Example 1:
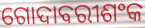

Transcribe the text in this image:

ଗୋଦାବରୀଶଂକ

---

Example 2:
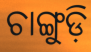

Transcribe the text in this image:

ଚାଙ୍ଗୁଡ଼ି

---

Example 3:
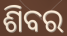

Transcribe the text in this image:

ଶିବର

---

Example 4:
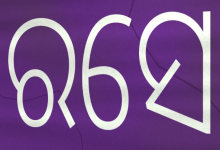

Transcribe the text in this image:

ରସେ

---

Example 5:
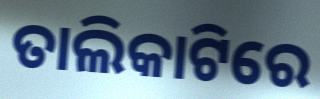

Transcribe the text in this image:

ତାଲିକାଟିରେ